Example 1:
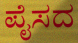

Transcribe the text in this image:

ಪೈಸದ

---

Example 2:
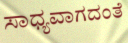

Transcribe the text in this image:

ಸಾಧ್ಯವಾಗದಂತೆ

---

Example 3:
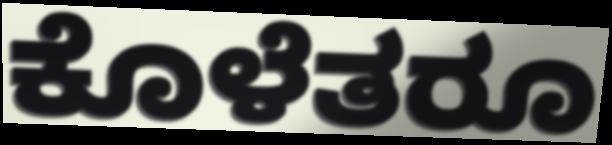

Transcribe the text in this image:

ಕೊಳೆತರೂ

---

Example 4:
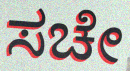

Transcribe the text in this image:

ಸಚೇ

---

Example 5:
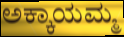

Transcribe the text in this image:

ಅಕ್ಕಾಯಮ್ಮ